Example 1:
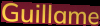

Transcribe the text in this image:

Guillame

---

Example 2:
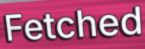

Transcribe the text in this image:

Fetched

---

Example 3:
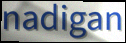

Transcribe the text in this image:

nadigan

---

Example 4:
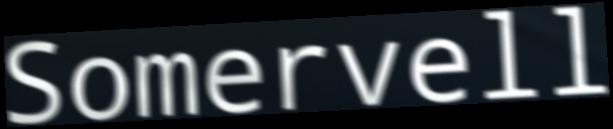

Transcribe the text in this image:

Somervell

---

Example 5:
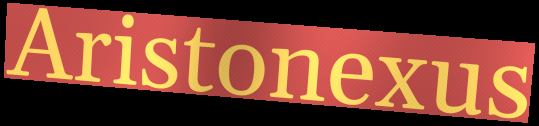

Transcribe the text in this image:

Aristonexus